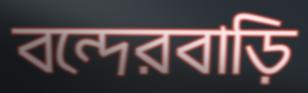
বন্দেরবাড়ি